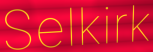
Selkirk